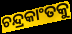
ଚନ୍ଦ୍ରକାଂତକୁ